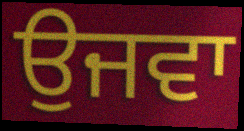
ਉਜਵਾ